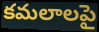
కమలాలపై